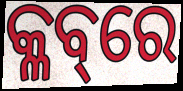
କ୍ଳବ୍‌ରେ